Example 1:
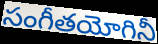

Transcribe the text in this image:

సంగీతయోగినీ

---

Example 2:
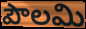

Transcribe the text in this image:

పౌలమి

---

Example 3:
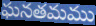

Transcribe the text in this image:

ఘనతమము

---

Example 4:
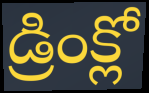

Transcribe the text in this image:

డ్రింక్లో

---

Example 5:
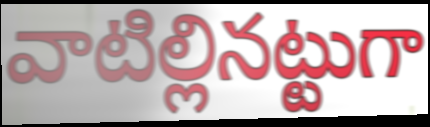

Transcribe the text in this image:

వాటిల్లినట్టుగా